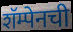
शॅम्पेनची